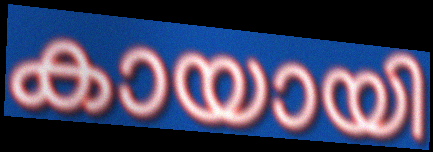
കായായി